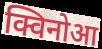
क्विनोआ